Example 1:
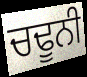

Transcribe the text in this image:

ਚਢੂਨੀ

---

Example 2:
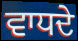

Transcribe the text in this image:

ਵਾਧਦੇ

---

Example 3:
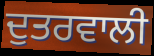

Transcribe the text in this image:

ਦੁਤਰਵਾਲੀ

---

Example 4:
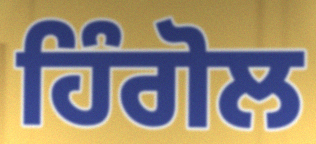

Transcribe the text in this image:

ਹਿੰਗੋਲ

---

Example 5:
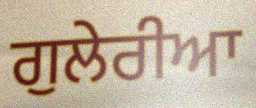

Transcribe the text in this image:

ਗੁਲੇਰੀਆ